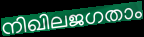
നിഖിലജഗതാം